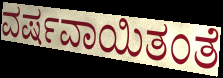
ವರ್ಷವಾಯಿತಂತೆ